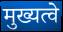
मुख्यत्वे